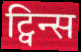
ट्विन्स